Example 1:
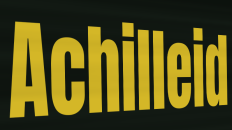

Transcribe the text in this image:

Achilleid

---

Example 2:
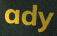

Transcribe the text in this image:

ady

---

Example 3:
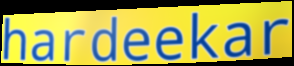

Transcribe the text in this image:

hardeekar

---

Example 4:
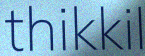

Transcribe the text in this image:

thikkil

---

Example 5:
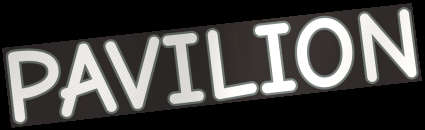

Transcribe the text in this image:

PAVILION